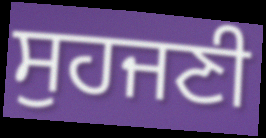
ਸੁਹਜਣੀ